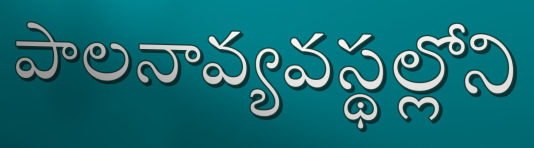
పాలనావ్యవస్థల్లోని